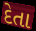
દેતા